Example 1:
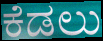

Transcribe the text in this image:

ಕೆಡಲು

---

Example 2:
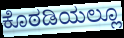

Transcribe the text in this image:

ಕೊಠಡಿಯಲ್ಲೂ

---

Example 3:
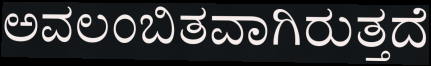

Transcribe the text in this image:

ಅವಲಂಬಿತವಾಗಿರುತ್ತದೆ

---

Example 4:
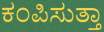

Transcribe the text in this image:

ಕಂಪಿಸುತ್ತಾ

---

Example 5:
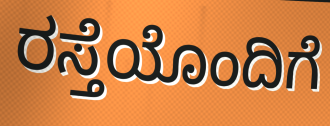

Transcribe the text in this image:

ರಸ್ತೆಯೊಂದಿಗೆ